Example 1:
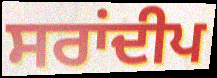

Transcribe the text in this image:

ਸਰਾਂਦੀਪ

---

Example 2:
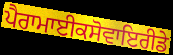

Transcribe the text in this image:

ਪੈਰਾਮਾਈਕਸੋਵਾਇਰੀਡੇ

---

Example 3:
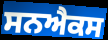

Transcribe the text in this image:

ਸਨਐਕਸ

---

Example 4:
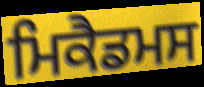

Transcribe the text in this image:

ਮਿਕੈਡਮਸ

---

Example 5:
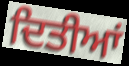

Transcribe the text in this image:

ਦਿਤੀਆਂ